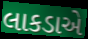
લાકડાએ